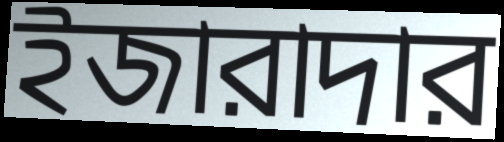
ইজারাদার